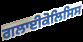
ਗਲਾਈਕੋਲਿਸਿਸ